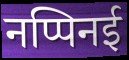
नप्पिनई